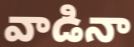
వాడినా